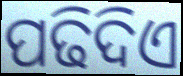
ପଢିଦିଏ